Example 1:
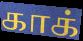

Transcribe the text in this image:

காக்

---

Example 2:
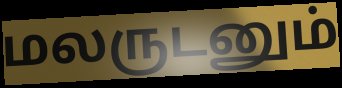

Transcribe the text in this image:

மலருடனும்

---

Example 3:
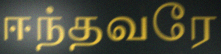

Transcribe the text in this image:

ஈந்தவரே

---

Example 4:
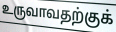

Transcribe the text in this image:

உருவாவதற்குக்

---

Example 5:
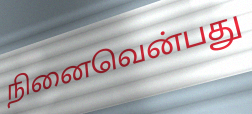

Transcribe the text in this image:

நினைவென்பது